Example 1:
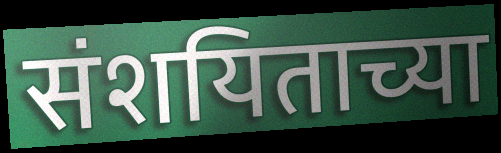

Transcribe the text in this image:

संशयिताच्या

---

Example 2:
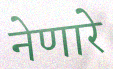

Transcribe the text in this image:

नेणारे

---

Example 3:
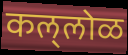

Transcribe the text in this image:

कल्लोळ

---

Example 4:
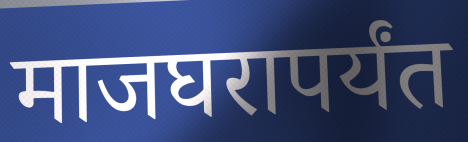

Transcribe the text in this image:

माजघरापर्यंत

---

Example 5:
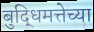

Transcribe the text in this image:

बुद्धिमत्तेच्या